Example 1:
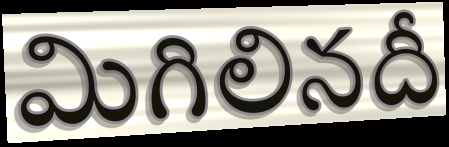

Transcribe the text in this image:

మిగిలినదీ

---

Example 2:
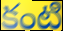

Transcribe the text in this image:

కంటి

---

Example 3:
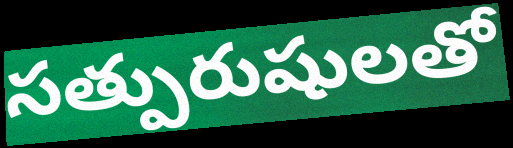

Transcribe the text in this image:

సత్పురుషులతో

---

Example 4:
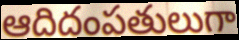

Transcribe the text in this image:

ఆదిదంపతులుగా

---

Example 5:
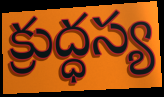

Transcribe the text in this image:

క్రుద్ధస్య